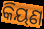
କିୟଣ